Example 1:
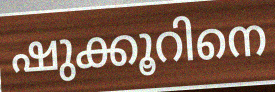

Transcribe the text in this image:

ഷുക്കൂറിനെ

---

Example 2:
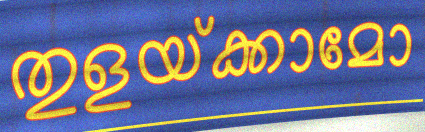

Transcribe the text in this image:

തുളയ്‌ക്കാമോ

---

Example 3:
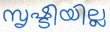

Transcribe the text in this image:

സൃഷ്ടിയില്ല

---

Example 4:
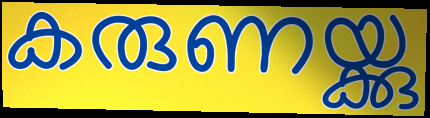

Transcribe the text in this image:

കരുണയ്ക്കു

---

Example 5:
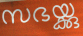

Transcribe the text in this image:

സഭയ്ക്കു